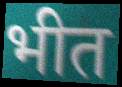
भीत